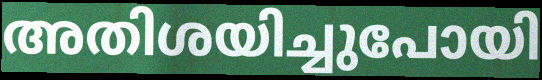
അതിശയിച്ചുപോയി